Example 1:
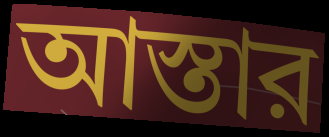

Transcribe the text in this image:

আস্তার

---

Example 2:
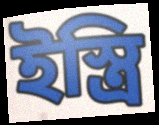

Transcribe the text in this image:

ইস্ত্রি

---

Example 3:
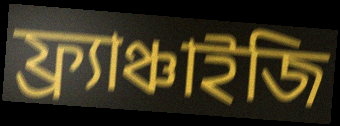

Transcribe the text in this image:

ফ্র্যাঞ্চাইজি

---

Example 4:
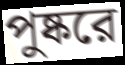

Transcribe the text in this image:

পুষ্করে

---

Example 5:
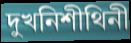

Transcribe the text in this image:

দুখনিশীথিনী